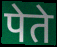
पेते